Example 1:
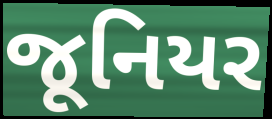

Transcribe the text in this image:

જૂનિયર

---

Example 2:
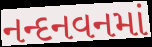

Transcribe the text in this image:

નન્દનવનમાં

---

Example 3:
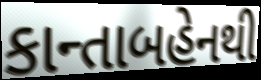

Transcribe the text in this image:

કાન્તાબહેનથી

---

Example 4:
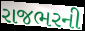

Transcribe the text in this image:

રાજભરની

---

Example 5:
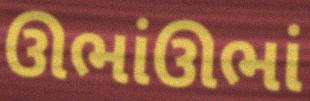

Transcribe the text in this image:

ઊભાંઊભાં